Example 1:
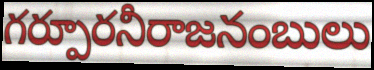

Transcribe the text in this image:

గర్పూరనీరాజనంబులు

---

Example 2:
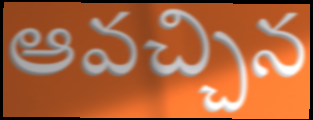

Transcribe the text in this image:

ఆవచ్చిన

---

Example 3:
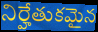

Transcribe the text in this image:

నిర్హేతుకమైన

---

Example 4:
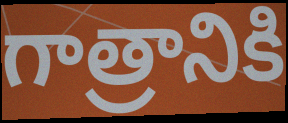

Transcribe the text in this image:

గాత్రానికి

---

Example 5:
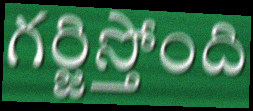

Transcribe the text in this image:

గర్జిస్తోంది